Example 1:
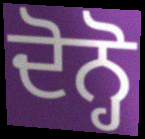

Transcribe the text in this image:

ਦੋਨ੍ਹੋ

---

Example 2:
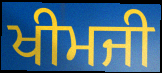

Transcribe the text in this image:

ਖੀਮਜੀ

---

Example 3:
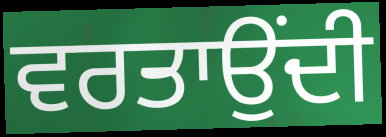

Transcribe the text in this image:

ਵਰਤਾਉਂਦੀ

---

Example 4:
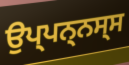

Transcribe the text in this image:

ਉਪ੍ਪਨ੍ਨਸ੍ਸ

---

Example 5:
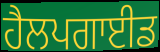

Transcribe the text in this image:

ਹੈਲਪਗਾਈਡ